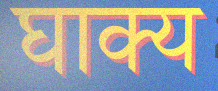
घाक्य